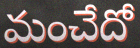
మంచేదో